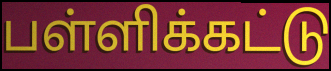
பள்ளிக்கட்டு